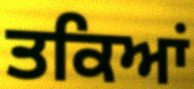
ਤਕਿਆਂ